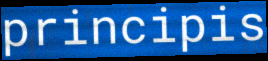
principis